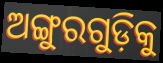
ଅଙ୍ଗୁରଗୁଡ଼ିକୁ